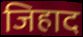
जिहाद